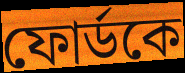
ফোর্ডকে